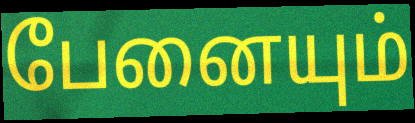
பேனையும்